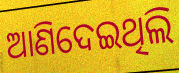
ଆଣିଦେଇଥିଲି